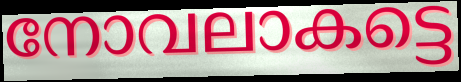
നോവലാകട്ടെ